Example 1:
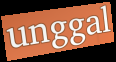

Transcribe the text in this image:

unggal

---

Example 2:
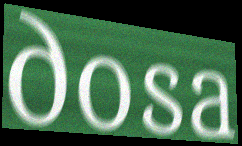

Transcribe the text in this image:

dosa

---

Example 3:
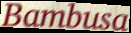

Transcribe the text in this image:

Bambusa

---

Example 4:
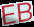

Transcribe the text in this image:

EB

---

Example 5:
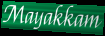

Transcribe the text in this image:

Mayakkam